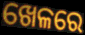
ଖେଳରେ